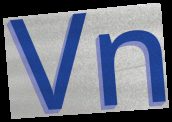
Vn